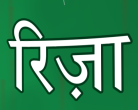
रिज़ा